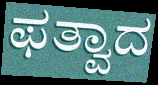
ಫತ್ವಾದ